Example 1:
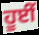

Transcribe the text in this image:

ਹੂਈਂ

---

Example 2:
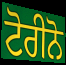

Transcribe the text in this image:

ਟੋਰੀਨੋ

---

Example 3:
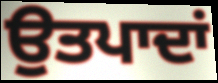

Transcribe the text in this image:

ਉਤਪਾਦਾਂ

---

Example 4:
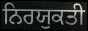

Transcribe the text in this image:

ਨਿਰਯੁਕਤੀ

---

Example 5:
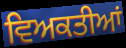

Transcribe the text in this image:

ਵਿਅਕਤੀਆਂ